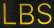
LBS